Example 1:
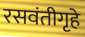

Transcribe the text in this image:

रसवंतीगृहे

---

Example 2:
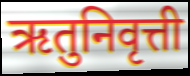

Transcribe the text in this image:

ऋतुनिवृत्ती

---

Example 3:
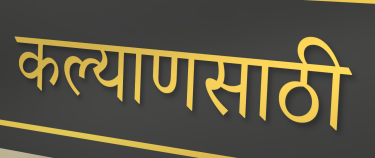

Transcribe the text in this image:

कल्याणसाठी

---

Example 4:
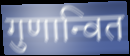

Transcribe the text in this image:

गुणान्वित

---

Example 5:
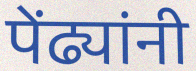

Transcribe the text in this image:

पेंढ्यांनी